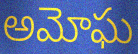
అమోఘ